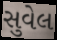
સુવેલ